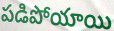
పడిపోయాయి